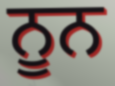
ਨੂਨ